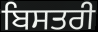
ਬਿਸਤਰੀ